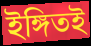
ইঙ্গিতই